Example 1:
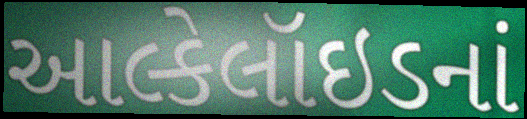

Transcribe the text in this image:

આલ્કેલૉઇડનાં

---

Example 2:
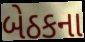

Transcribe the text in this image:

બેઠકના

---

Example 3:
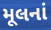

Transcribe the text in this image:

મૂલનાં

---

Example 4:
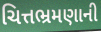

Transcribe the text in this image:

ચિત્તભ્રમણાની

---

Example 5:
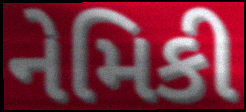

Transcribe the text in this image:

નેમિકી